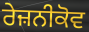
ਰੇਜ਼ਨੀਕੋਵ